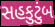
સહકુટુંબ